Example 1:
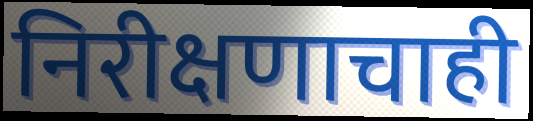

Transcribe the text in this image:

निरीक्षणाचाही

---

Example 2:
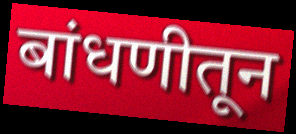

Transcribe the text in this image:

बांधणीतून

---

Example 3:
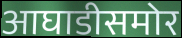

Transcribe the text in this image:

आघाडीसमोर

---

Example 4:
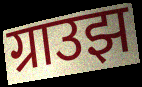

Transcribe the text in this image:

ग्राउझ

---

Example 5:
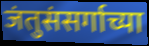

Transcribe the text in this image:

जंतुसंसर्गाच्या